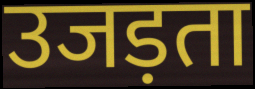
उजड़ता